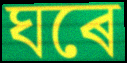
ঘৰে